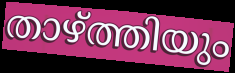
താഴ്ത്തിയും